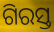
ଗିରସ୍ତ